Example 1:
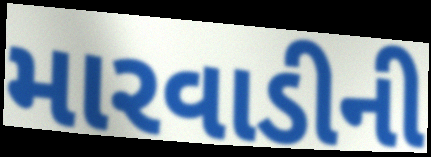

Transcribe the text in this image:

મારવાડીની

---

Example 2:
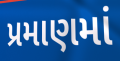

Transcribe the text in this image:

પ્રમાણમાં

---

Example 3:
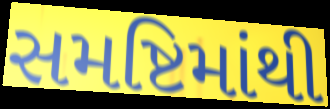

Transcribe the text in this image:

સમષ્ટિમાંથી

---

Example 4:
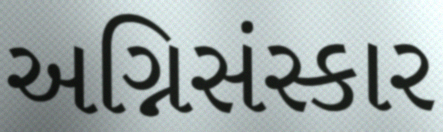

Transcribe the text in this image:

અગ્નિસંસ્કાર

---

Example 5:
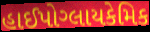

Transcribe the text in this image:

હાઈપોગ્લાયકેમિક